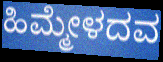
ಹಿಮ್ಮೇಳದವ